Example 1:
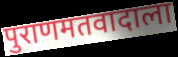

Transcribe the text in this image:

पुराणमतवादाला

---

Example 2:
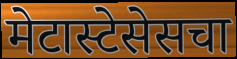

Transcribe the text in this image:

मेटास्टेसेसचा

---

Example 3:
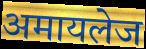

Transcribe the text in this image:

अमायलेज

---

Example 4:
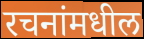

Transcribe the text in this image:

रचनांमधील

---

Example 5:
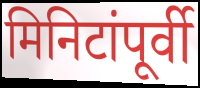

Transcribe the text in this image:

मिनिटांपूर्वी